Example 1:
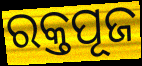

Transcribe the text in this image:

ରକ୍ତପୂଜ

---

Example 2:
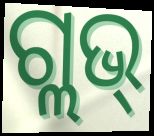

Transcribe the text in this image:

ଗ୍ଲଭ୍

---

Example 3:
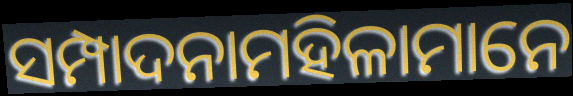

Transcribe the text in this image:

ସମ୍ପାଦନାମହିଳାମାନେ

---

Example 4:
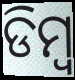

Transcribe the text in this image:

ଡିମ୍ଵ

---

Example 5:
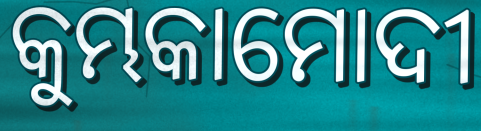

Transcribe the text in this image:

କୁମ୍ଭକାମୋଦୀ